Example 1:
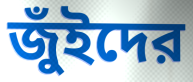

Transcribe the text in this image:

জুঁইদের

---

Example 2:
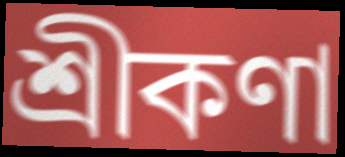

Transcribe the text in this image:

শ্রীকণা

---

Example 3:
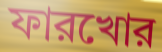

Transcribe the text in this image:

ফারখোর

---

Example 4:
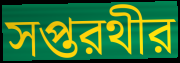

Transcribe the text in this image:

সপ্তরথীর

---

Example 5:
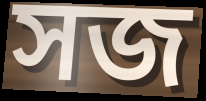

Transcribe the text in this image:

সজ